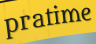
pratime